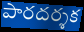
పారదర్శక